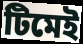
টিমেই